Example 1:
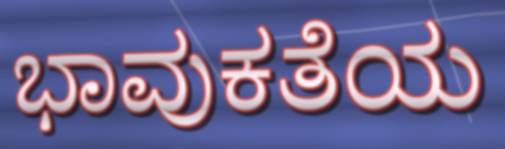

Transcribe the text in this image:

ಭಾವುಕತೆಯ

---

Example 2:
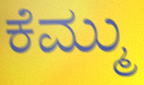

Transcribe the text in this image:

ಕೆಮ್ಮು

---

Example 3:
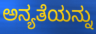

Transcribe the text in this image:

ಅನ್ಯತೆಯನ್ನು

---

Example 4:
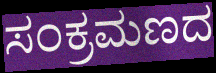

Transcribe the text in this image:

ಸಂಕ್ರಮಣದ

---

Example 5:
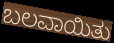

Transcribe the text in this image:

ಬಲವಾಯಿತು